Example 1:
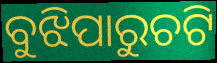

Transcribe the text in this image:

ବୁଝିପାରୁଚଟି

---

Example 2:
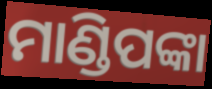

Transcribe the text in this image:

ମାଣ୍ଡିପଙ୍କା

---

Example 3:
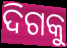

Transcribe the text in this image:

ଦିଗକୁ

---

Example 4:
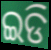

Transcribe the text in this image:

ଇଡି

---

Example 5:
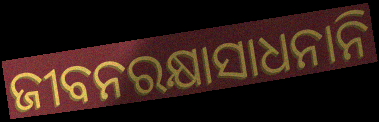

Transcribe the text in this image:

ଜୀବନରକ୍ଷାସାଧନାନି